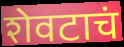
शेवटाचं